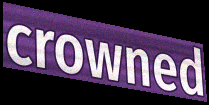
crowned